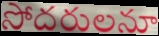
సోదరులనూ